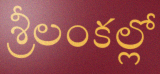
శ్రీలంకల్లో